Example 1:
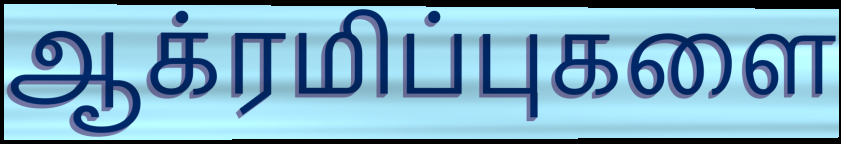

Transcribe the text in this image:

ஆக்ரமிப்புகளை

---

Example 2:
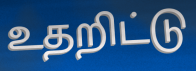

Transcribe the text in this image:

உதறிட்டு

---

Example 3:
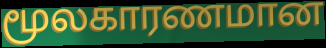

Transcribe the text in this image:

மூலகாரணமான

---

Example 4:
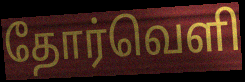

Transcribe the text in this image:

தோர்வெளி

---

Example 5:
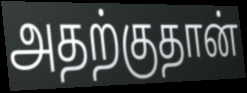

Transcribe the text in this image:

அதற்குதான்